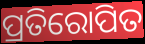
ପ୍ରତିରୋପିତ